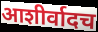
आशीर्वादच